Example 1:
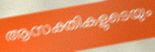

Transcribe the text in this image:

ആസക്തികളുടെയും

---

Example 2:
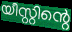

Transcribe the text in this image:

യീസ്റ്റിന്റെ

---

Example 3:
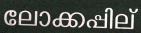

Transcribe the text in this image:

ലോക്കപ്പില്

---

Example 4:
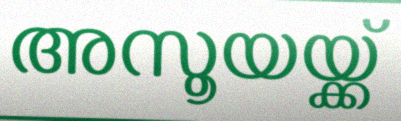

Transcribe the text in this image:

അസൂയയ്ക്ക്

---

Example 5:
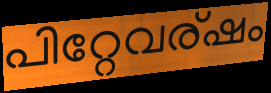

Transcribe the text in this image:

പിറ്റേവര്ഷം